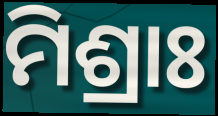
ମିଶ୍ରାଃ